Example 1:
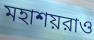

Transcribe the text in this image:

মহাশয়রাও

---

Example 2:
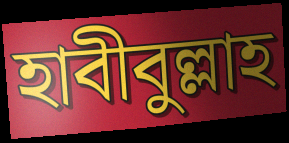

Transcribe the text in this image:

হাবীবুল্লাহ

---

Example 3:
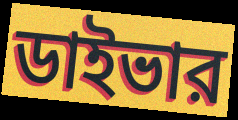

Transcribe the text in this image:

ডাইভার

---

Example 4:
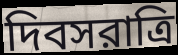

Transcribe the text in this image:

দিবসরাত্রি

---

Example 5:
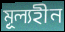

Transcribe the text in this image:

মূল্যহীন